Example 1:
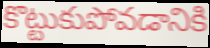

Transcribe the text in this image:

కొట్టుకుపోవడానికి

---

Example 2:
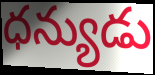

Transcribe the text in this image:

ధన్యుడు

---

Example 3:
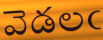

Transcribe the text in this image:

వెడలఁ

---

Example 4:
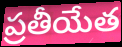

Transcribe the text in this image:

ప్రతీయేత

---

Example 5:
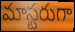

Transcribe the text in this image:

మాస్టరుగా